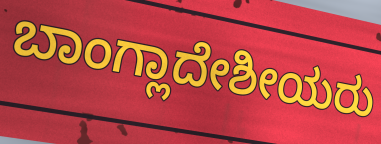
ಬಾಂಗ್ಲಾದೇಶೀಯರು